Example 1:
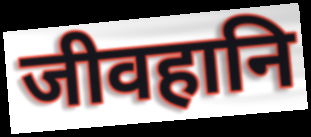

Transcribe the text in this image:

जीवहानि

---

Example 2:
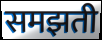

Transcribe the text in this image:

समझती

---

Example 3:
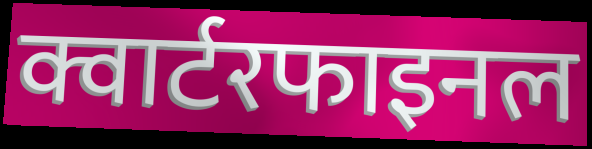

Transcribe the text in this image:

क्वार्टरफाइनल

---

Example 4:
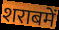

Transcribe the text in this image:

शराबमें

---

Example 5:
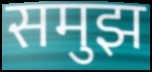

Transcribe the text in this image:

समुझ